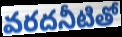
వరదనీటితో